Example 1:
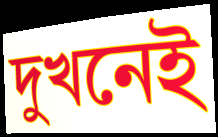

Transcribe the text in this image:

দুখনেই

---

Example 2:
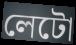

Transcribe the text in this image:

লেটো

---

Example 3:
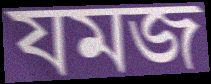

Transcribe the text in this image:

যমজ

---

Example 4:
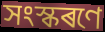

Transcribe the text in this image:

সংস্কৰণে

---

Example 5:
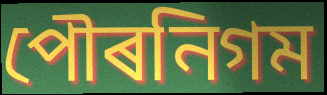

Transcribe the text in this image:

পৌৰনিগম